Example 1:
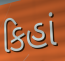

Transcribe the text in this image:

કિહાં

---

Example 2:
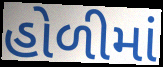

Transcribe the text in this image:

હોળીમાં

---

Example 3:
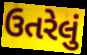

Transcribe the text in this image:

ઉતરેલું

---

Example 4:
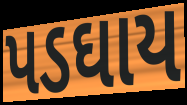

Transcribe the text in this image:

પડઘાય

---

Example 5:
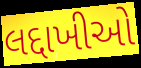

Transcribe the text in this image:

લદ્દાખીઓ